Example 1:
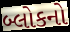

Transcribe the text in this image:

બ્લોકનો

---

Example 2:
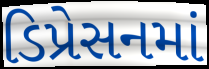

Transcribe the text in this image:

ડિપ્રેસનમાં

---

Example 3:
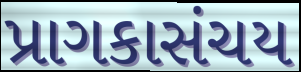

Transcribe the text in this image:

પ્રાગકાસંચય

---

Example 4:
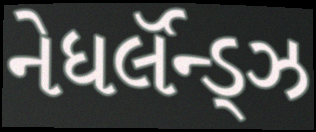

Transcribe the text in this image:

નેધર્લૅન્ડ્ઝ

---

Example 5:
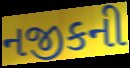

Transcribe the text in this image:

નજીકની